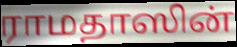
ராமதாஸின்